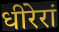
धीरेरां